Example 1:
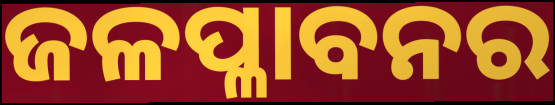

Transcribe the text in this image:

ଜଳପ୍ଳାବନର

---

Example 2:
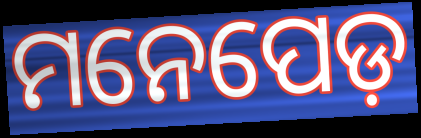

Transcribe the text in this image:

ମନେପେଡ଼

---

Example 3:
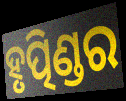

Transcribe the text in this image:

ହୃତ୍ପିଣ୍ଡର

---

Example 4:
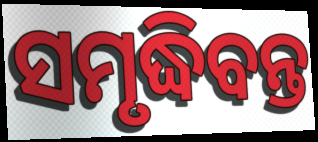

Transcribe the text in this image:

ସମୃଦ୍ଧିବନ୍ତ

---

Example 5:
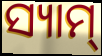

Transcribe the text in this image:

ସ୍ୟାମ୍